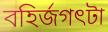
বহির্জগৎটা